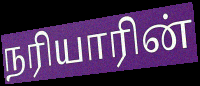
நரியாரின்